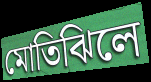
মোতিঝিলে